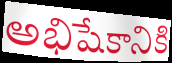
అభిషేకానికి